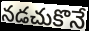
నడచుకొనే